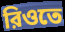
রিওতে